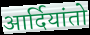
आर्दियांतो